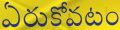
ఏరుకోవటం